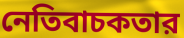
নেতিবাচকতার